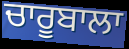
ਚਾਰੂਬਾਲਾ